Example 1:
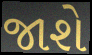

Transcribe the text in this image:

જાશે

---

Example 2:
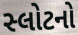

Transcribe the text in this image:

સ્લોટનો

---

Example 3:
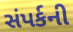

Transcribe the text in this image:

સંપર્કની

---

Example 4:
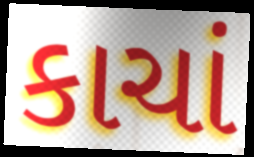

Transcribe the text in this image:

કાચાં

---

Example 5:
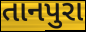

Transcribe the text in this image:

તાનપુરા